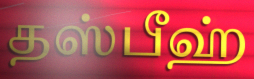
தஸ்பீஹ்